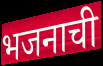
भजनाची